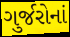
ગુર્જરોનાં